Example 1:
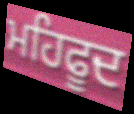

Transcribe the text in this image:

ਮਹਿਫੂਦ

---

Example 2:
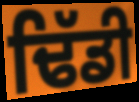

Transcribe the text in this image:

ਢਿੱਡੀ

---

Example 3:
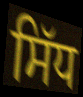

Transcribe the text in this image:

ਸਿੱਧ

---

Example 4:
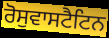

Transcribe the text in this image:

ਰੋਸੁਵਾਸਟੈਟਿਨ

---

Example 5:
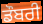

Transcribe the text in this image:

ਡੌਬਰੀ